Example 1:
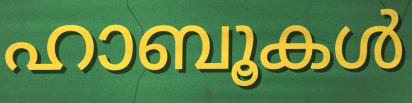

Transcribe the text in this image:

ഹാബൂകൾ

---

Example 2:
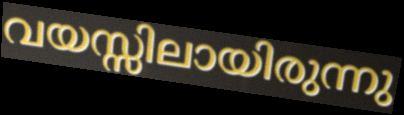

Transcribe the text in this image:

വയസ്സിലായിരുന്നു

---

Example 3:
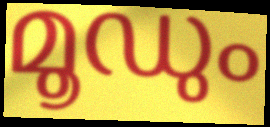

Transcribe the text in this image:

മൂഡും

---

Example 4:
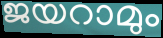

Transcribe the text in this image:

ജയറാമും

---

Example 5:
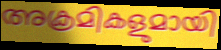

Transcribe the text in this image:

അക്രമികളുമായി